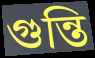
গুন্তি